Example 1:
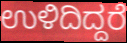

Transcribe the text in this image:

ಉಳಿದಿದ್ದರೆ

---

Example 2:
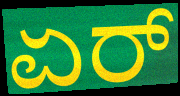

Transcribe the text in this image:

ಏರ್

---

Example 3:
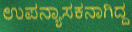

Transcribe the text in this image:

ಉಪನ್ಯಾಸಕನಾಗಿದ್ದ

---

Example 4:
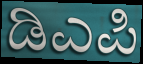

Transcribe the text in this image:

ಡಿಎಪಿ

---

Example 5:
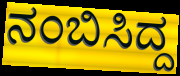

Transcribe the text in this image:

ನಂಬಿಸಿದ್ದ